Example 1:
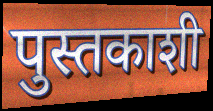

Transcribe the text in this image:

पुस्तकाशी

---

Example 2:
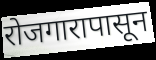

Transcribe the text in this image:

रोजगारापासून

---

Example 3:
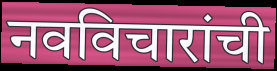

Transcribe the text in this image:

नवविचारांची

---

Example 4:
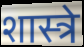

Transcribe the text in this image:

शास्त्रे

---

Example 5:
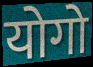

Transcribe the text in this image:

योगो